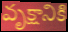
వృక్షానికి